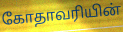
கோதாவரியின்